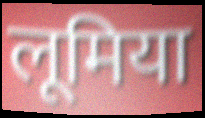
लूमिया